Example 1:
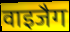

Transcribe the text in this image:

वाइजैग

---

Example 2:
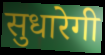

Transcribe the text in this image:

सुधारेगी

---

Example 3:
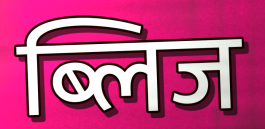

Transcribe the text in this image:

ब्लिज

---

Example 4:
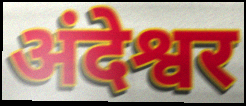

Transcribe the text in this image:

अंदेश्वर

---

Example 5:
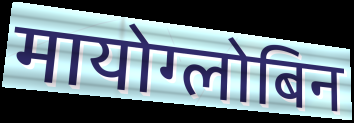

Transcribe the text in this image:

मायोग्लोबिन